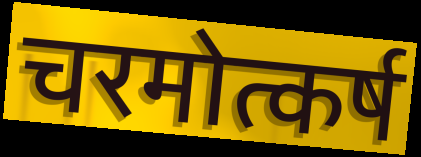
चरमोत्कर्ष